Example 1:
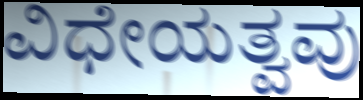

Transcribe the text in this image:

ವಿಧೇಯತ್ವವು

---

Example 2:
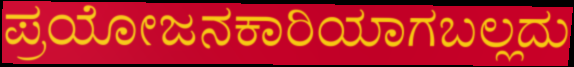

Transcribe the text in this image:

ಪ್ರಯೋಜನಕಾರಿಯಾಗಬಲ್ಲದು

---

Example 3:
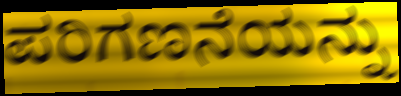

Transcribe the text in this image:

ಪರಿಗಣನೆಯನ್ನು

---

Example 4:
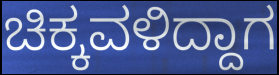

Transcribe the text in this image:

ಚಿಕ್ಕವಳಿದ್ದಾಗ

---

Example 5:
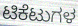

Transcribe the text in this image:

ಟಿಕೆಟುಗಳ